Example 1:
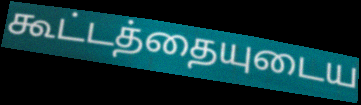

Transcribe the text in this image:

கூட்டத்தையுடைய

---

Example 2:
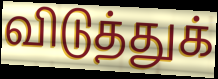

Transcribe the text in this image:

விடுத்துக்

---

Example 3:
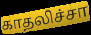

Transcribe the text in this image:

காதலிச்சா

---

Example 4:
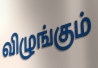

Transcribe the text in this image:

விழுங்கும்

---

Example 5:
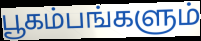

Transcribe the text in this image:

பூகம்பங்களும்